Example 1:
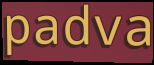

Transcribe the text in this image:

padva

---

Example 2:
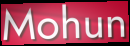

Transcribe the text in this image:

Mohun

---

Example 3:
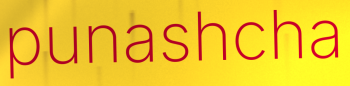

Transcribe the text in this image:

punashcha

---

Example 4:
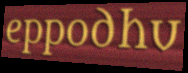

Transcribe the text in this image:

eppodhu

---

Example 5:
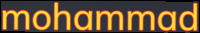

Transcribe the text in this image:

mohammad